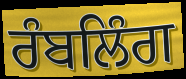
ਰੰਬਲਿੰਗ